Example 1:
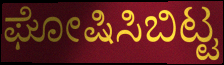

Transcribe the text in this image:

ಘೋಷಿಸಿಬಿಟ್ಟ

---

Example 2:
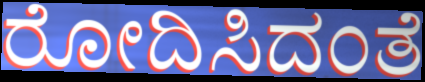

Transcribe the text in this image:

ರೋದಿಸಿದಂತೆ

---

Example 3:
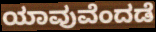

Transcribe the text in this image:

ಯಾವುವೆಂದಡೆ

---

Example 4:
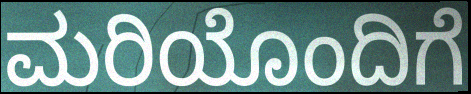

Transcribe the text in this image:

ಮರಿಯೊಂದಿಗೆ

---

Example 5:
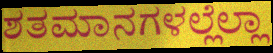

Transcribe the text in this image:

ಶತಮಾನಗಳಲ್ಲೆಲ್ಲಾ